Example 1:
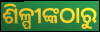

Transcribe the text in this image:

ଶିଳ୍ପୀଙ୍କଠାରୁ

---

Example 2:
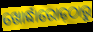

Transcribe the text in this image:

ଖୋର୍ଦ୍ଧାରୋଡ଼ଠାରୁ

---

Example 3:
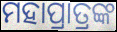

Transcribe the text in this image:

ମହାପ୍ରାତ୍ରଙ୍କ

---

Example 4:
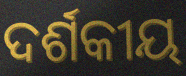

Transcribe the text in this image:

ଦର୍ଶକୀୟ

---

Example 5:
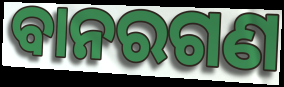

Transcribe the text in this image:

ବାନରଗଣ